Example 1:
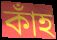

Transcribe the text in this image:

কাঁহ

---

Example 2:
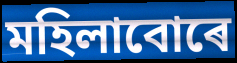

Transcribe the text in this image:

মহিলাবোৰে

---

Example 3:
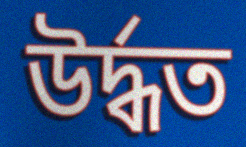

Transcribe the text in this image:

উৰ্দ্ধত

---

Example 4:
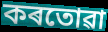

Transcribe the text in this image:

কৰতোৱা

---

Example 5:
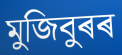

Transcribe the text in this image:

মুজিবুৰৰ